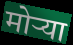
मोर्‍या